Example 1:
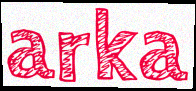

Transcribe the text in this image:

arka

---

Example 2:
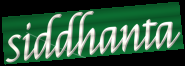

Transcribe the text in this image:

siddhanta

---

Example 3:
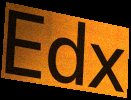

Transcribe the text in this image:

Edx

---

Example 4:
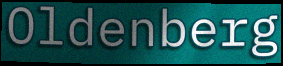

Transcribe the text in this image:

Oldenberg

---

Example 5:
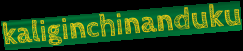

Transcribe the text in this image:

kaliginchinanduku